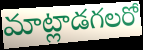
మాట్లాడగలరో